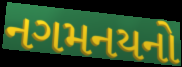
નગમનયનો